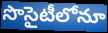
సొసైటీలోనూ